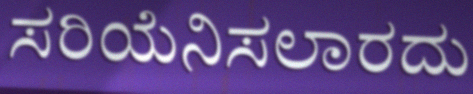
ಸರಿಯೆನಿಸಲಾರದು